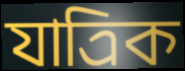
যাত্ৰিক